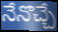
నేనొచ్చే